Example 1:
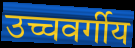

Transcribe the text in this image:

उच्चवर्गीय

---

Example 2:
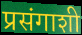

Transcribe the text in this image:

प्रसंगाशी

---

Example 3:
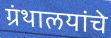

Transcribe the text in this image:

ग्रंथालयांचे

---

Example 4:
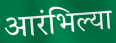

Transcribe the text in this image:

आरंभिल्या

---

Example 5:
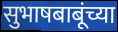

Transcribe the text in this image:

सुभाषबाबूंच्या